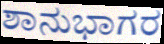
ಶಾನುಭಾಗರ